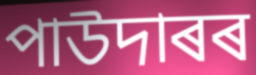
পাউদাৰৰ